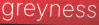
greyness